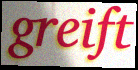
greift